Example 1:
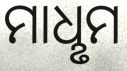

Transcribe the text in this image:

ମାଧୢମ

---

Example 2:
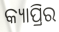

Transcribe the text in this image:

କ୍ୟାପ୍ରିର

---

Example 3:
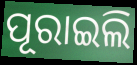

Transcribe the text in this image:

ପୂରାଇଲି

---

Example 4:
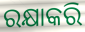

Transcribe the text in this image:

ରକ୍ଷାକରି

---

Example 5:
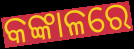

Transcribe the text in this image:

କଙ୍କାଳରେ